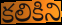
కలికిని